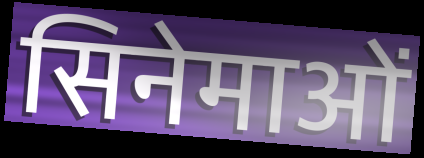
सिनेमाओं